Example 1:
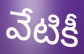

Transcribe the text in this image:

వేటికీ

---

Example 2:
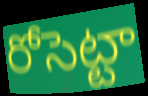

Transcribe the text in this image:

రోసెట్టా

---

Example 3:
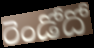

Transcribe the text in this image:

రెండోదో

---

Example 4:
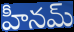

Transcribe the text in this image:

హీనమ్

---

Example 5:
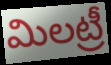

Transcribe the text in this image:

మిలట్రీ